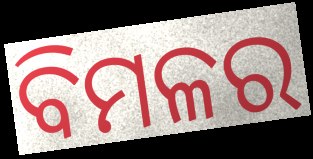
ବିମଳର